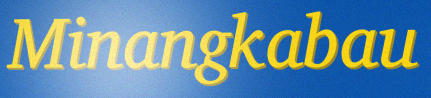
Minangkabau